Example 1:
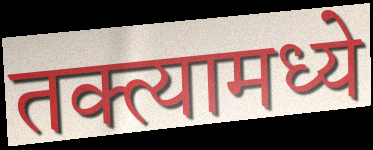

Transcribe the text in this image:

तक्त्यामध्ये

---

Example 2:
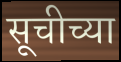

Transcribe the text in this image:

सूचीच्या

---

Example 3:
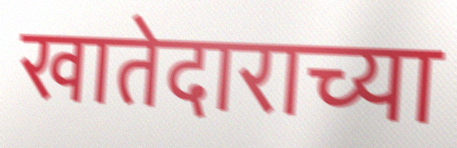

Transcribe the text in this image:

खातेदाराच्या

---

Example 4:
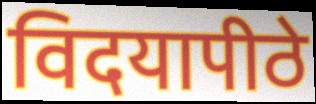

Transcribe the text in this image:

विदयापीठे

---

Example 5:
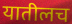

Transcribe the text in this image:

यातीलच